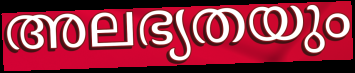
അലഭ്യതയും